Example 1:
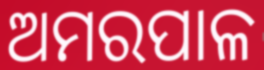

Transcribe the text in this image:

ଅମରପାଳ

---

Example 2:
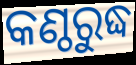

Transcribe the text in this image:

କଣ୍ଠରୁଦ୍ଧ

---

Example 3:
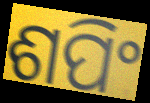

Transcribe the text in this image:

ଶପିଂ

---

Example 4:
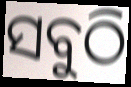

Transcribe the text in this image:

ସବୁଠି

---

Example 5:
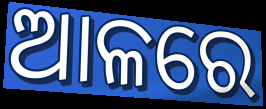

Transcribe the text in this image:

ଆଳରେ